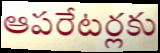
ఆపరేటర్లకు